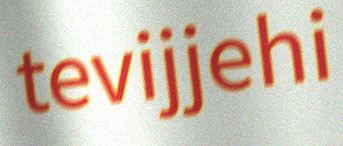
tevijjehi